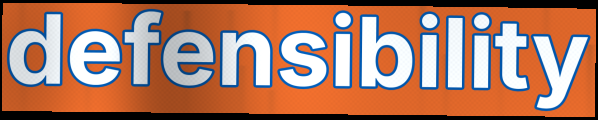
defensibility